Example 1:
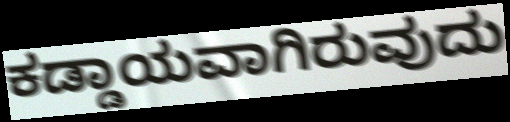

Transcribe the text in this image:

ಕಡ್ಡಾಯವಾಗಿರುವುದು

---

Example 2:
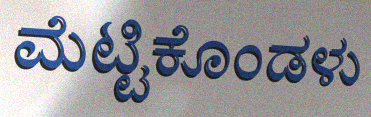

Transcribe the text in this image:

ಮೆಟ್ಟಿಕೊಂಡಳು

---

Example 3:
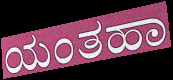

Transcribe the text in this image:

ಯಂತಹಾ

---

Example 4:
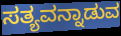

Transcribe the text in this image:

ಸತ್ಯವನ್ನಾಡುವ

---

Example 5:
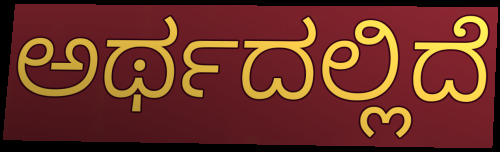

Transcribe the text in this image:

ಅರ್ಥದಲ್ಲಿದೆ